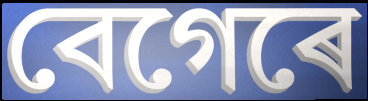
বেগেৰে